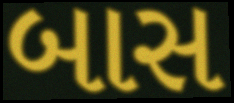
બાસ